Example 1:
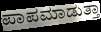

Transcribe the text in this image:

ಪಾಪಮಾಡುತ್ತಾ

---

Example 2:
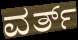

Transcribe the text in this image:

ವರ್ತ್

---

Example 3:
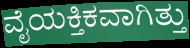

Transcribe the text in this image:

ವೈಯಕ್ತಿಕವಾಗಿತ್ತು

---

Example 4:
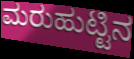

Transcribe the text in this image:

ಮರುಹುಟ್ಟಿನ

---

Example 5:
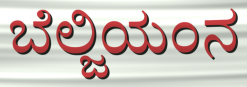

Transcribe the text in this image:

ಬೆಲ್ಜಿಯಂನ